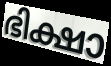
ഭിക്ഷാ